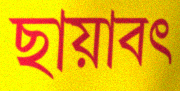
ছায়াবৎ